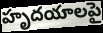
హృదయాలపై